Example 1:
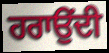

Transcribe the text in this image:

ਹਰਾਉਂਦੀ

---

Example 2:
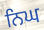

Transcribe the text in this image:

ਨਿਘ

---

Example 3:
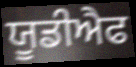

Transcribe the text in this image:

ਯੂਡੀਐਫ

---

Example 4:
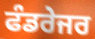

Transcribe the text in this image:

ਫੰਡਰੇਜਰ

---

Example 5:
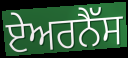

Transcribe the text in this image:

ਏਅਰਨੈੱਸ